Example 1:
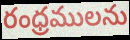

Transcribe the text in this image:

రంధ్రములను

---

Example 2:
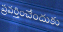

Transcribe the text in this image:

ప్రవర్తించేందుకు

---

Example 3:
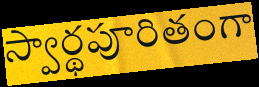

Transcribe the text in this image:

స్వార్థపూరితంగా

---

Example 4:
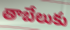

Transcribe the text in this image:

తాబేలుకు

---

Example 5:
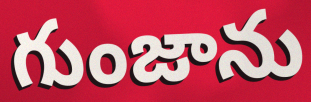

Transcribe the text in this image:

గుంజాను